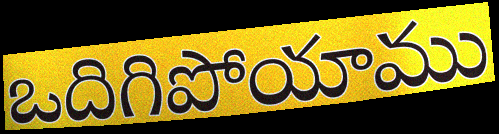
ఒదిగిపోయాము